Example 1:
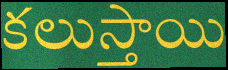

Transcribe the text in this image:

కలుస్తాయి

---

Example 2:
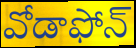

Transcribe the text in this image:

వోడాఫోన్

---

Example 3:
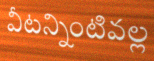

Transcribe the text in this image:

వీటన్నింటివల్ల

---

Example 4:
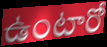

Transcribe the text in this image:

ఉంటారో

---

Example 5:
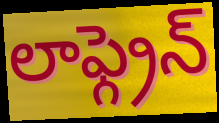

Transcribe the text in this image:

లాఫ్గ్రెన్